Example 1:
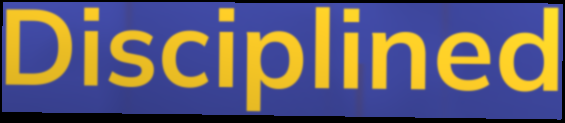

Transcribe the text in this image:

Disciplined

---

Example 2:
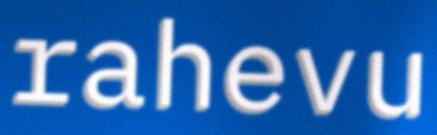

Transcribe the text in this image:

rahevu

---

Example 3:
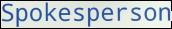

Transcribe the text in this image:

Spokesperson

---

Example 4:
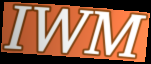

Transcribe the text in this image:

IWM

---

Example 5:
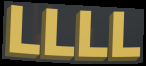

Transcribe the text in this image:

LLLL